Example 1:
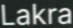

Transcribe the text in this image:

Lakra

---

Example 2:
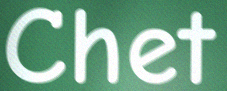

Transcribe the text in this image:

Chet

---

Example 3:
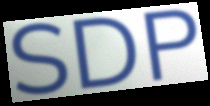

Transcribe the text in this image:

SDP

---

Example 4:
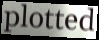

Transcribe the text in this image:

plotted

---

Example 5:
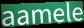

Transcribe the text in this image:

aamele